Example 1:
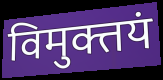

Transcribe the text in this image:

विमुक्तयं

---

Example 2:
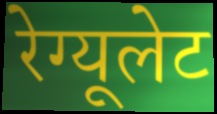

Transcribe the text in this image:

रेग्यूलेट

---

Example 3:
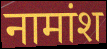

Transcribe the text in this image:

नामांश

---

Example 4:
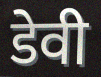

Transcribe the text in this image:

डेवी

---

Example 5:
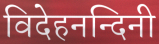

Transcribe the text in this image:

विदेहनन्दिनी